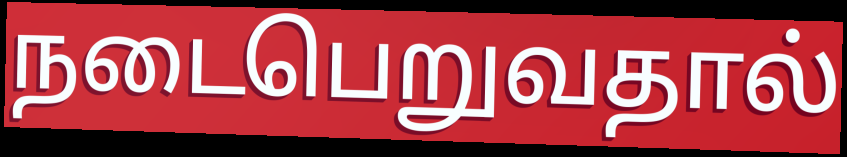
நடைபெறுவதால்